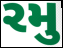
રમુ